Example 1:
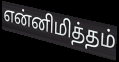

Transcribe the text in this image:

என்னிமித்தம்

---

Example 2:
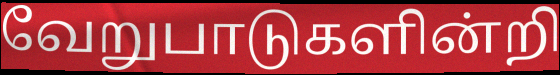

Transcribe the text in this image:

வேறுபாடுகளின்றி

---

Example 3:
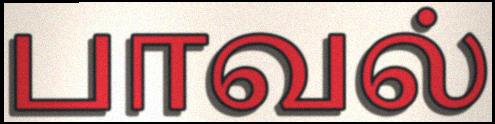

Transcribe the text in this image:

பாவல்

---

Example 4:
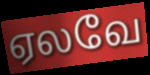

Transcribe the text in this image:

ஏலவே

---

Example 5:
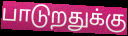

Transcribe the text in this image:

பாடுறதுக்கு